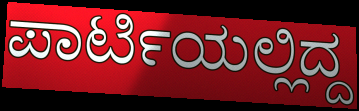
ಪಾರ್ಟಿಯಲ್ಲಿದ್ದ